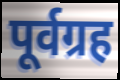
पूर्वग्रह